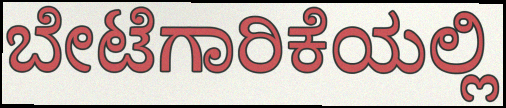
ಬೇಟೆಗಾರಿಕೆಯಲ್ಲಿ